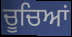
ਚੂਚਿਆਂ